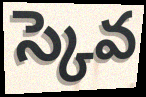
స్కెవ